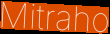
Mitraho